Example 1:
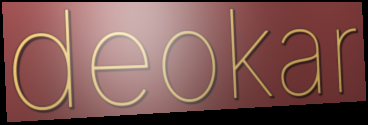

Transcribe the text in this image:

deokar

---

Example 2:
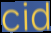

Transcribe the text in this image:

cid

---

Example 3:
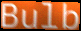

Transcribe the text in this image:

Bulb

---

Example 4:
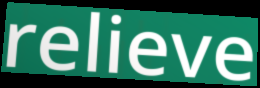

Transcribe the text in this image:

relieve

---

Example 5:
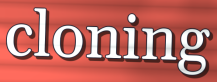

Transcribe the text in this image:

cloning